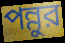
পন্নুর